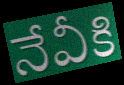
నేవీకి